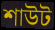
শাউট